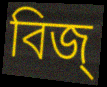
বিজ্